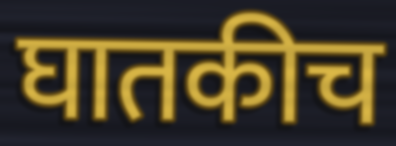
घातकीच